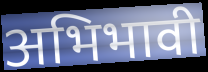
अभिभावी